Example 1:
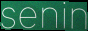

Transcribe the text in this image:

senin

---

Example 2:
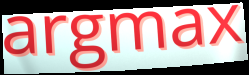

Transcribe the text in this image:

argmax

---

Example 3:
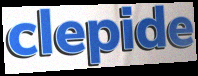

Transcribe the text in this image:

clepide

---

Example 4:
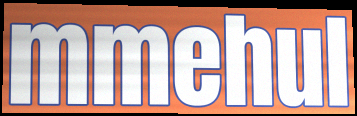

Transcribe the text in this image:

mmehul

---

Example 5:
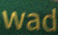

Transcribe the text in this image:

wad